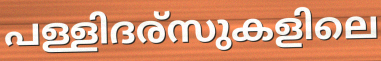
പള്ളിദര്സുകളിലെ